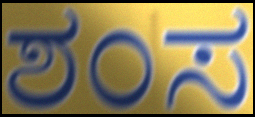
ಶಂಸ